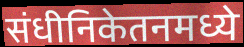
संधीनिकेतनमध्ये